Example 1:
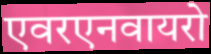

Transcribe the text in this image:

एवरएनवायरो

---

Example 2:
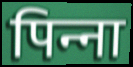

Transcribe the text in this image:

पिन्ना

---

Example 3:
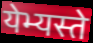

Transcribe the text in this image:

येभ्यस्ते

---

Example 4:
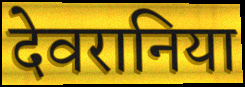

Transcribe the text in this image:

देवरानिया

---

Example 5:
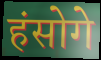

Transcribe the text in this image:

हंसोगे